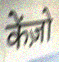
केंज़ो